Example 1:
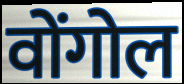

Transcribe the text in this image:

वोंगोल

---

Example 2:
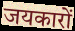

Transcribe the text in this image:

जयकारों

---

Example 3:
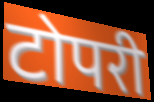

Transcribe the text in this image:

टोपरी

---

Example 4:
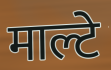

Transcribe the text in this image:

माल्टे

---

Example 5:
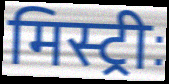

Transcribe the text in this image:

मिस्ट्रीः